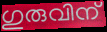
ഗുരുവിന്